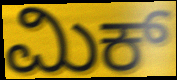
ಮಿಕ್